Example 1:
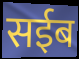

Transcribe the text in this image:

सईब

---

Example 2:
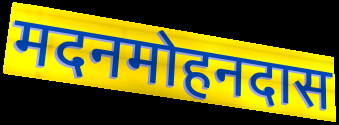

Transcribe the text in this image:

मदनमोहनदास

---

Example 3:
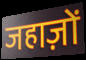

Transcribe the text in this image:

जहाज़ों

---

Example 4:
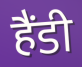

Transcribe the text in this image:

हैंडी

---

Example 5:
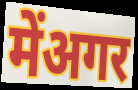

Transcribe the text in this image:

मेंअगर